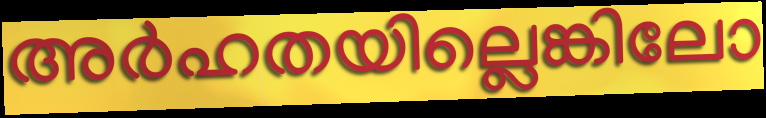
അർഹതയില്ലെങ്കിലോ